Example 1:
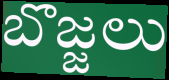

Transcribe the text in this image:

బొజ్జలు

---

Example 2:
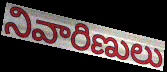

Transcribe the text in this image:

నివారిణులు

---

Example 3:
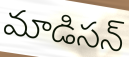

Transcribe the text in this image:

మాడిసన్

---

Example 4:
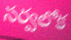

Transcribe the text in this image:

సర్వలోక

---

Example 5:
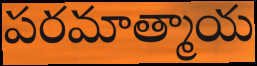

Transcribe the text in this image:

పరమాత్మాయ